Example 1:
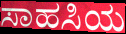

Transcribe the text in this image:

ಸಾಹಸಿಯ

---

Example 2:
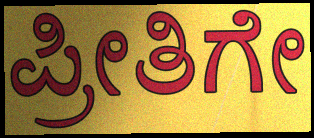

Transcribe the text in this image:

ಪ್ರೀತಿಗೇ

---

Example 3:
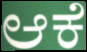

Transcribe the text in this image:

ಆಕೆ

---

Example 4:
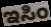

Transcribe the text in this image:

ಇಸಿಂ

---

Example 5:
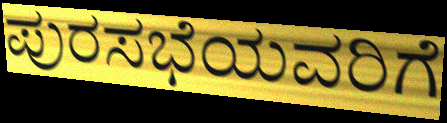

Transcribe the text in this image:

ಪುರಸಭೆಯವರಿಗೆ